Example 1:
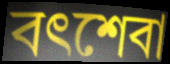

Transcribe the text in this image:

বৎশেবা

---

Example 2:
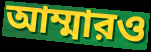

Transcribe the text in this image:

আম্মারও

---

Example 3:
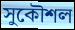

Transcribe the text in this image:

সুকৌশল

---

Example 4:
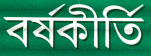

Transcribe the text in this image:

বর্ষকীর্তি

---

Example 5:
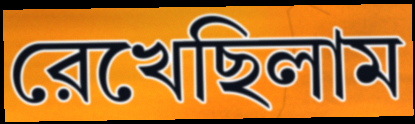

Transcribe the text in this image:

রেখেছিলাম